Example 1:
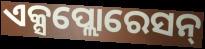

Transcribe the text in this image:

ଏକ୍ସପ୍ଲୋରେସନ୍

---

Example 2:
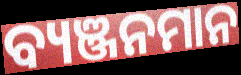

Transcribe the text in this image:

ବ୍ୟଞ୍ଜନମାନ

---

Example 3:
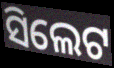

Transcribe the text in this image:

ସିଲେଟ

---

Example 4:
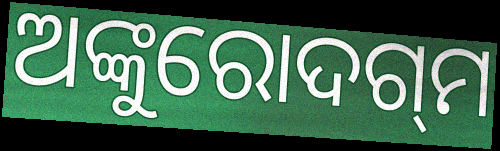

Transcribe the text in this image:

ଅଙ୍କୁରୋଦଗ୍‌ମ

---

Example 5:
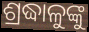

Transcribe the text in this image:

ଶ୍ରଦ୍ଧାଳୁଙ୍କୁ